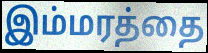
இம்மரத்தை